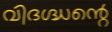
വിദഗ്ദ്ധന്റെ